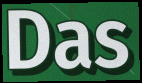
Das